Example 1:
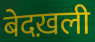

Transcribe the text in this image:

बेदख़ली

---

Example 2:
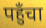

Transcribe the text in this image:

पहुँचा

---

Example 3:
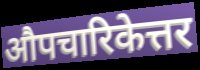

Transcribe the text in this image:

औपचारिकेत्तर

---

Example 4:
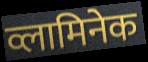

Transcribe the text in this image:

व्लामिनेक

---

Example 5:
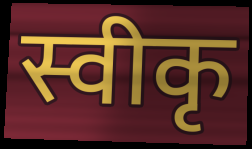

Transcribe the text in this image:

स्वीकृ